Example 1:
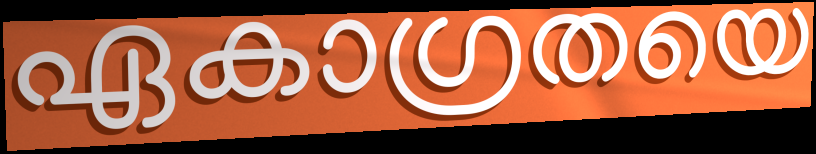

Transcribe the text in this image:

ഏകാഗ്രതയെ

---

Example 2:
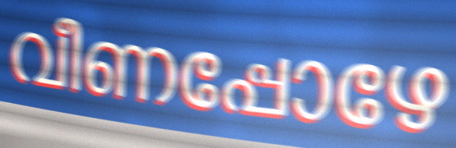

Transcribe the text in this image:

വീണപ്പോഴേ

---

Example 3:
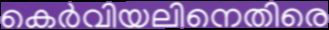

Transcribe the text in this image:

കെർവിയലിനെതിരെ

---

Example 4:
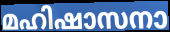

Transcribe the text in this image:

മഹിഷാസനാ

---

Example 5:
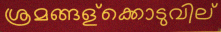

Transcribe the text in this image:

ശ്രമങ്ങള്ക്കൊടുവില്